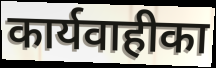
कार्यवाहीका